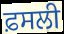
ਫ਼ਸਲੀ